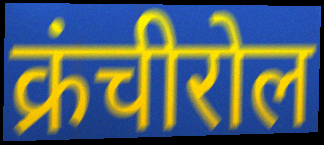
क्रंचीरोल